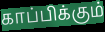
காப்பிக்கும்